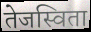
तेजस्विता